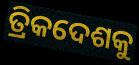
ତ୍ରିକଦେଶକୁ